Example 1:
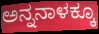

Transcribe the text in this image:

ಅನ್ನನಾಳಕ್ಕೂ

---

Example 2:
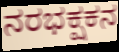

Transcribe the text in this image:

ನರಭಕ್ಷಕನ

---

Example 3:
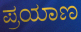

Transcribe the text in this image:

ಪ್ರಯಾಣ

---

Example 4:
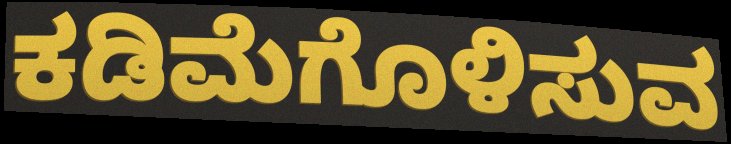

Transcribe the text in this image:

ಕಡಿಮೆಗೊಳಿಸುವ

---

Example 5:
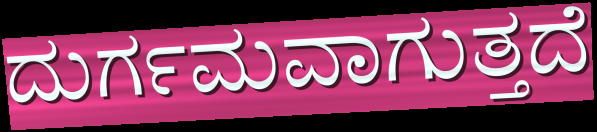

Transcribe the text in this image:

ದುರ್ಗಮವಾಗುತ್ತದೆ